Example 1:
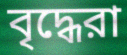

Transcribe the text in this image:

বৃদ্ধেরা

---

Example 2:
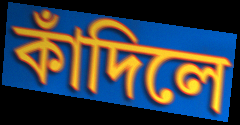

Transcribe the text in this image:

কাঁদিলে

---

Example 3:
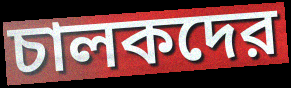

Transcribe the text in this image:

চালকদের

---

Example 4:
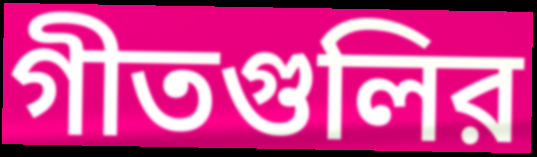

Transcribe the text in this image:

গীতগুলির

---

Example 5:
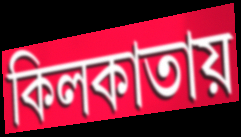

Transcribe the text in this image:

কিলকাতায়